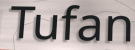
Tufan